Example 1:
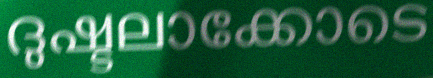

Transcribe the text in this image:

ദുഷ്ടലാക്കോടെ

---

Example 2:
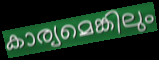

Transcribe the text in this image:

കാര്യമെങ്കിലും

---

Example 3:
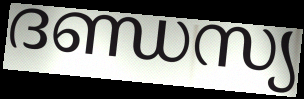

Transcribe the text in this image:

ദണ്ഡസ്യ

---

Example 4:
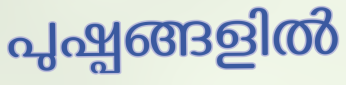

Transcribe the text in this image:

പുഷ്പങ്ങളിൽ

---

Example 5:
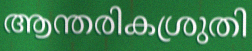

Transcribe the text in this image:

ആന്തരികശ്രുതി